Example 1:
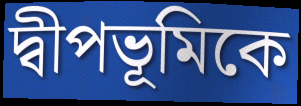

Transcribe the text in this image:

দ্বীপভূমিকে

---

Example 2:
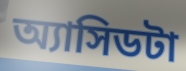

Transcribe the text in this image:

অ্যাসিডটা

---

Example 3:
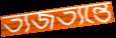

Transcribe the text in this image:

ত্যজত্যন্তে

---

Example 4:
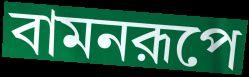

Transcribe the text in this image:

বামনরূপে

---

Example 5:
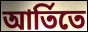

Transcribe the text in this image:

আর্তিতে